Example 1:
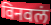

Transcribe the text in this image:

विनवलं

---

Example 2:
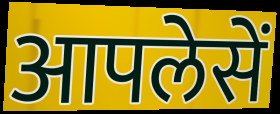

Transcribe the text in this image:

आपलेसें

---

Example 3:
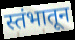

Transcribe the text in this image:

स्तंभातून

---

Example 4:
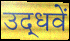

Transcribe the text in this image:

उद्धवें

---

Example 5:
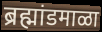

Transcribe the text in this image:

ब्रह्मांडमाळा